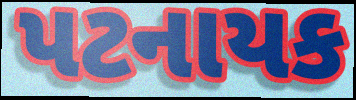
પટનાયક